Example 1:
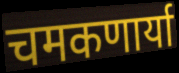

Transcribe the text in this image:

चमकणार्या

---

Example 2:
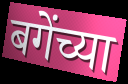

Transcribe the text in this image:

बगेंच्या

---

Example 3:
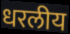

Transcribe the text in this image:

धरलीय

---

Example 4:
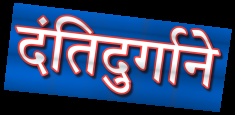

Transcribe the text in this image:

दंतिदुर्गाने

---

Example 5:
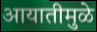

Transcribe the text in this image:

आयातीमुळे